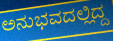
ಅನುಭವದಲ್ಲಿದ್ದ